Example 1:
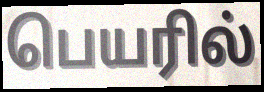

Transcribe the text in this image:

பெயரில்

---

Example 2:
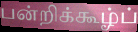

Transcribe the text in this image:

பன்றிக்கூழ்ப்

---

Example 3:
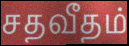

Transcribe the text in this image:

சதவீதம்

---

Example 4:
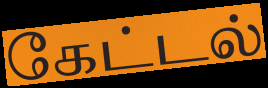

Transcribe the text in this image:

கேட்டல்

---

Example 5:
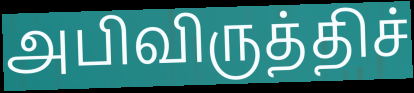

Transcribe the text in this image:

அபிவிருத்திச்